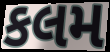
કલમ